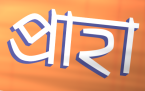
প্রাহা